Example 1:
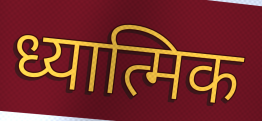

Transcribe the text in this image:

ध्यात्मिक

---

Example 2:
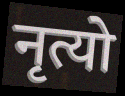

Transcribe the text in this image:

नृत्यो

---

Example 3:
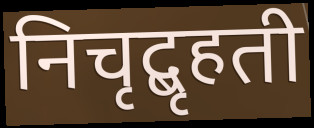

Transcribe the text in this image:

निचृद्बृहती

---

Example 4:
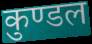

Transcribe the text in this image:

कुण्डल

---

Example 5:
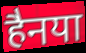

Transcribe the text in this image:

हैनया